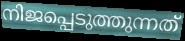
നിജപ്പെടുത്തുന്നത്